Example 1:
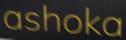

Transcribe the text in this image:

ashoka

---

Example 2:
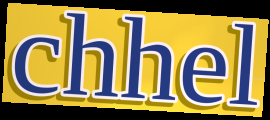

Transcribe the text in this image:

chhel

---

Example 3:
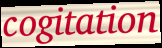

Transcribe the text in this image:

cogitation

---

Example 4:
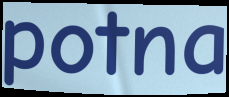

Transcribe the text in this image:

potna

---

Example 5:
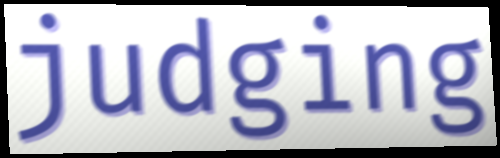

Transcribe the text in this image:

judging